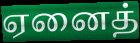
ஏனைத்